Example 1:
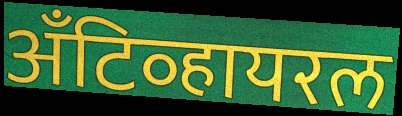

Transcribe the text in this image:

अँटिव्हायरल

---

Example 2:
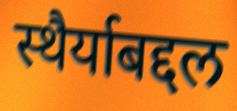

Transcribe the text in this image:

स्थैर्याबद्दल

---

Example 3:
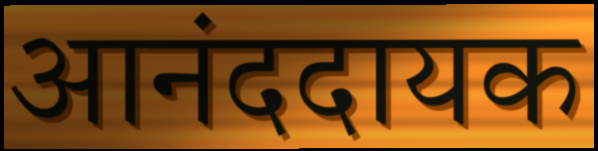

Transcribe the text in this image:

आनंददायक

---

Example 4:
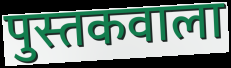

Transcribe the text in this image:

पुस्तकवाला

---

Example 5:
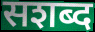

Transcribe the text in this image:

सशब्द